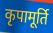
कृपामूर्ति